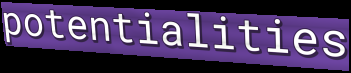
potentialities